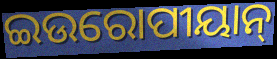
ଇଉରୋପୀୟାନ୍